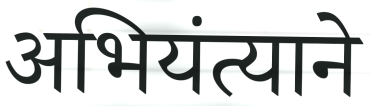
अभियंत्याने